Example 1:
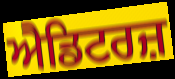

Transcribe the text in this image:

ਐਡਿਟਰਜ਼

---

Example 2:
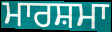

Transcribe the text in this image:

ਮਾਰਸ਼ਮਾ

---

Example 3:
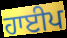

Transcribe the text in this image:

ਹਾਈਪ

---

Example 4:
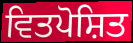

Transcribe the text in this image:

ਵਿਤਪੋਸ਼ਿਤ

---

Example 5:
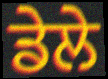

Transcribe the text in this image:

ਡੇਲੇ